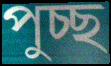
পুচ্ছ